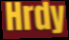
Hrdy